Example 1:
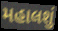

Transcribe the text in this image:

મહાલશું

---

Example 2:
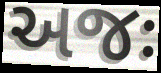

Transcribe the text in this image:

અજઃ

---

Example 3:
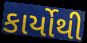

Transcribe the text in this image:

કાર્યોથી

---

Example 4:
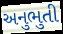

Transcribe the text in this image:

અનુભુતી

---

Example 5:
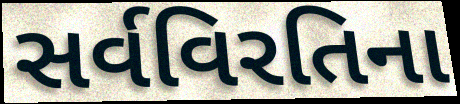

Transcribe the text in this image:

સર્વવિરતિના